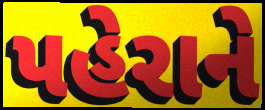
પહેરાને